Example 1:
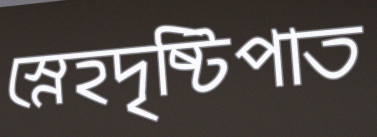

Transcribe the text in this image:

স্নেহদৃষ্টিপাত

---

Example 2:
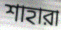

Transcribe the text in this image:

শাহারা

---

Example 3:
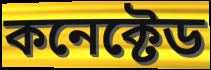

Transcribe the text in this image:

কনেক্টেড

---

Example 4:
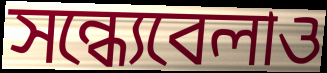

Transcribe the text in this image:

সন্ধ্যেবেলাও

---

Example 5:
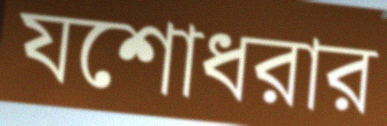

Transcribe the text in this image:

যশোধরার